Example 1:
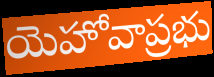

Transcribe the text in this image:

యెహోవాప్రభు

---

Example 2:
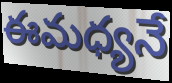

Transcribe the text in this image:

ఈమధ్యనే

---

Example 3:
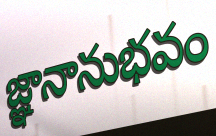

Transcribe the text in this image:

జ్ఞానానుభవం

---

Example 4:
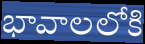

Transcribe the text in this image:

భావాలలోకి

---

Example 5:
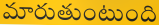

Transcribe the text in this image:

మారుతుంటుంది